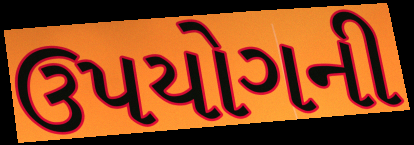
ઉપયોગની